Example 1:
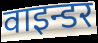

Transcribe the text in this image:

वाइन्डर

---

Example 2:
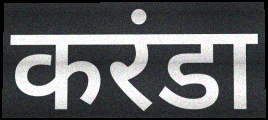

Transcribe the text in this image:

करंडा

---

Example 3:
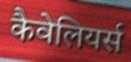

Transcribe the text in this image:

कैवेलियर्स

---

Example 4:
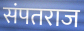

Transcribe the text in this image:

संपतराज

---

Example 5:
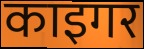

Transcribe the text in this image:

काइगर